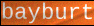
bayburt